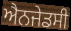
ਐਨਜੇਡਸੀ